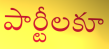
పార్టీలకూ